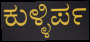
ಕುಳ್ಳಿರ್ಪ